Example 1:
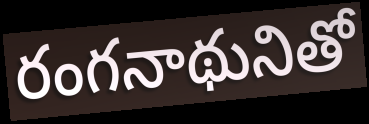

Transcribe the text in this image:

రంగనాథునితో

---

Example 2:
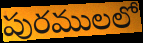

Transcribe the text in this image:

పురములలో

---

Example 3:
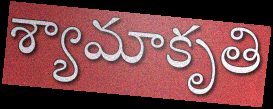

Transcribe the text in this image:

శ్యామాకృతి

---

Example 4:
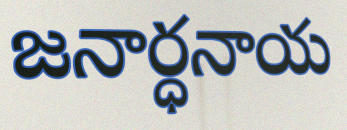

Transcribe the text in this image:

జనార్ధనాయ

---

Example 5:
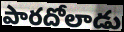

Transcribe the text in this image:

పారదోలాడు